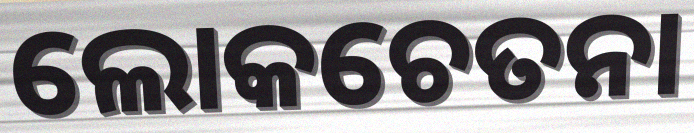
ଲୋକଚେତନା